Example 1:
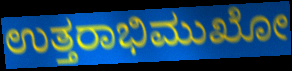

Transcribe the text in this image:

ಉತ್ತರಾಭಿಮುಖೋ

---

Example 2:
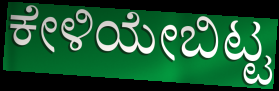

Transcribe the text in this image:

ಕೇಳಿಯೇಬಿಟ್ಟ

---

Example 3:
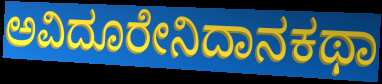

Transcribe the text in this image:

ಅವಿದೂರೇನಿದಾನಕಥಾ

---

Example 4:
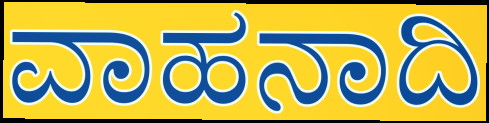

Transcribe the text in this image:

ವಾಹನಾದಿ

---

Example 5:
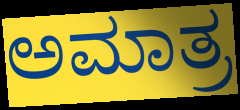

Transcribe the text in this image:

ಅಮಾತ್ರ